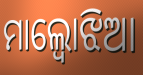
ମାଲ୍ବୋଝିଆ